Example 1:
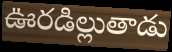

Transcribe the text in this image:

ఊరడిల్లుతాడు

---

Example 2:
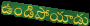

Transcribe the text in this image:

ఉండిపోయాడు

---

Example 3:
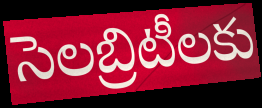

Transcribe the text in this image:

సెలబ్రిటీలకు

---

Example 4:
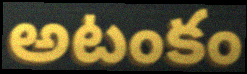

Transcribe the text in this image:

అటంకం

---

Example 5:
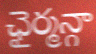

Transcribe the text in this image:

ఛైర్మన్గా